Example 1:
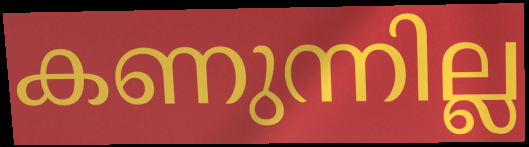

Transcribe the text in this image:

കണുന്നില്ല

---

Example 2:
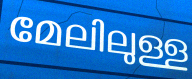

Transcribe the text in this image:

മേലിലുള്ള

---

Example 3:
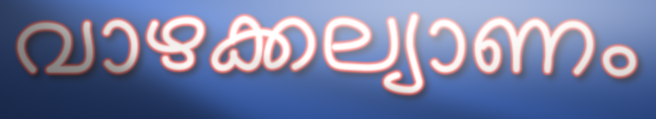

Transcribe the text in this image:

വാഴക്കല്യാണം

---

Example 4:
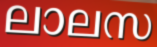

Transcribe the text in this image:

ലാലസ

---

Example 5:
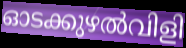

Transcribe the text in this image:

ഓടക്കുഴൽവിളി